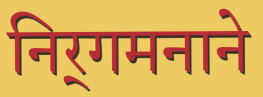
निर्गमनाने